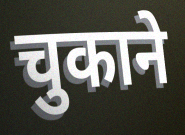
चुकाने